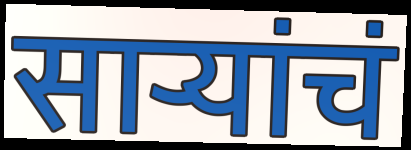
साऱ्यांचं